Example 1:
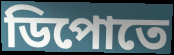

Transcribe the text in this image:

ডিপোতে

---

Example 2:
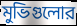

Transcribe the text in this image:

মুভিগুলোর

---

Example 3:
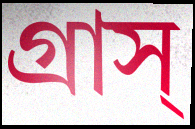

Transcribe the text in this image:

গ্রাস্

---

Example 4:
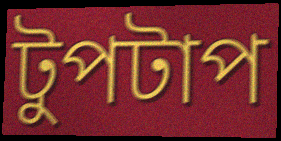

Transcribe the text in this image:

টুপটাপ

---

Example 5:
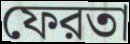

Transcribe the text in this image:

ফেরতা